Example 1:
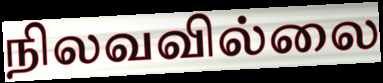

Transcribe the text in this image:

நிலவவில்லை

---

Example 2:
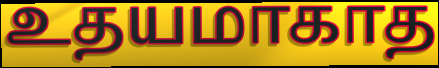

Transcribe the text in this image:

உதயமாகாத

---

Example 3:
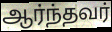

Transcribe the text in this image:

ஆர்ந்தவர்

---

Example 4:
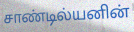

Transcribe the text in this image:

சாண்டில்யனின்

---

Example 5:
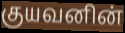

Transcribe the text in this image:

குயவனின்